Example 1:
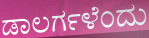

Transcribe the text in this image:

ಡಾಲರ್ಗಳೆಂದು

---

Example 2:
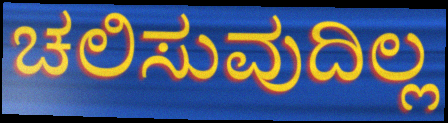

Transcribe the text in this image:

ಚಲಿಸುವುದಿಲ್ಲ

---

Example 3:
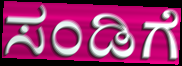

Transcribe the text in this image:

ಸಂಡಿಗೆ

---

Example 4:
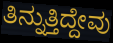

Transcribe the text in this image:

ತಿನ್ನುತ್ತಿದ್ದೇವು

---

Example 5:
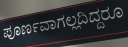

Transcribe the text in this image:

ಪೂರ್ಣವಾಗಲ್ಲದಿದ್ದರೂ